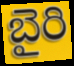
బైరి